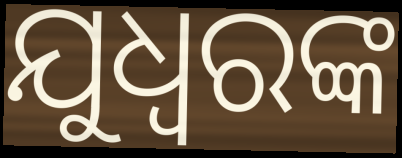
ଯୁଧ୍ୱରଙ୍କ